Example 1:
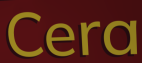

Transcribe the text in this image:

Cera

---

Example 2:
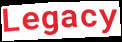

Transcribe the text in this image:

Legacy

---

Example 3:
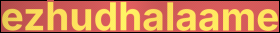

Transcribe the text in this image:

ezhudhalaame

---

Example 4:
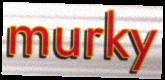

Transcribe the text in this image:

murky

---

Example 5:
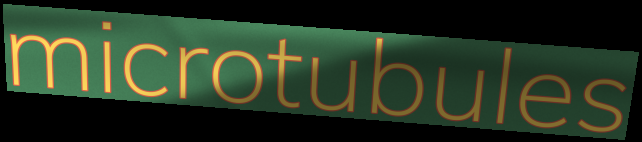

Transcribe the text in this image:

microtubules